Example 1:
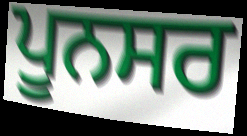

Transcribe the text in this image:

ਪੂਨਸਰ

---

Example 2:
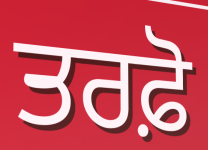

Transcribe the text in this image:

ਤਰਫ਼ੋ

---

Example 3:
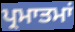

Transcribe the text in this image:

ਪ੍ਰਮਾਤਮਾਂ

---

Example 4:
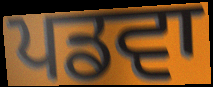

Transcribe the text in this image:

ਪਡਵਾ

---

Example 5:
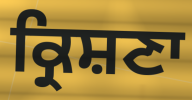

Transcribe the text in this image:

ਕ੍ਰਿਸ਼ਣਾ